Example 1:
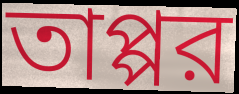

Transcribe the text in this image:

তাপ্পর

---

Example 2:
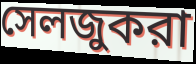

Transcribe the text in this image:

সেলজুকরা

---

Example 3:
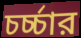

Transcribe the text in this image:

চর্চ্চার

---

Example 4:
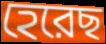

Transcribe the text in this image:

হেরেছ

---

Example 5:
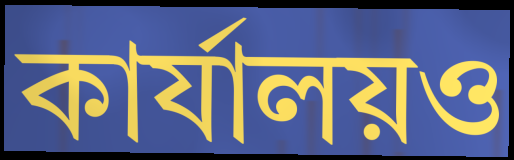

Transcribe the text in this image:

কার্যালয়ও